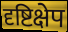
दृष्टिक्षेप